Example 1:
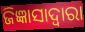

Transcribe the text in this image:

ଜିଜ୍ଞାସାଦ୍ୱାରା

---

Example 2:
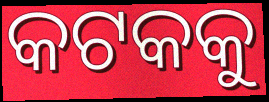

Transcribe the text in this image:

କଟକକୁ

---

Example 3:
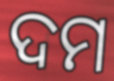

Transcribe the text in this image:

ଦମ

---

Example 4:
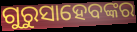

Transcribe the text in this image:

ଗୁରୁସାହେବଙ୍କର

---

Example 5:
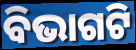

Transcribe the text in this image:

ବିଭାଗଟି